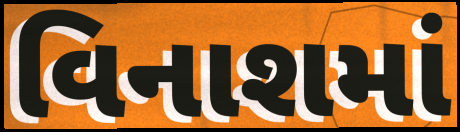
વિનાશમાં